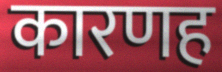
कारणह